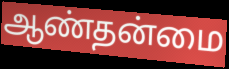
ஆண்தன்மை